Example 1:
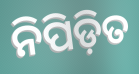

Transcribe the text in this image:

ନିପିଡ଼ିତ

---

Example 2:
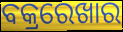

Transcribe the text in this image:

ବକ୍ରରେଖାର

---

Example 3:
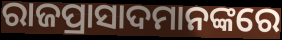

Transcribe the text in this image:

ରାଜପ୍ରାସାଦମାନଙ୍କରେ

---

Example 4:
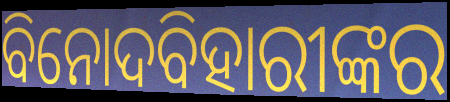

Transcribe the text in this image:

ବିନୋଦବିହାରୀଙ୍କର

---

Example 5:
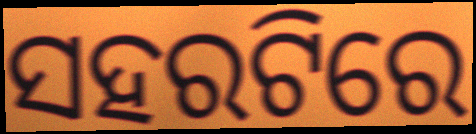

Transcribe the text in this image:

ସହରଟିରେ